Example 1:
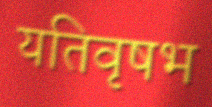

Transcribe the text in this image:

यतिवृषभ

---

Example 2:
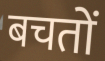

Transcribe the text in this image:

बचतों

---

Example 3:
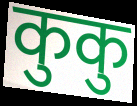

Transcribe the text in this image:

कुकु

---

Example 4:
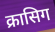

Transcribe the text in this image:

क्रासिग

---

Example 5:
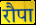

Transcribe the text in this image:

रौपा